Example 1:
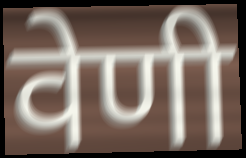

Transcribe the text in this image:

वेणी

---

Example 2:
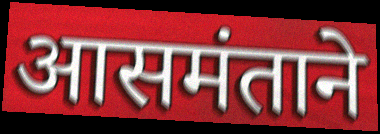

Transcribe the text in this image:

आसमंताने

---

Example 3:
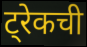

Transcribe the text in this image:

ट्रेकची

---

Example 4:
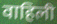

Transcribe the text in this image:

वाहिली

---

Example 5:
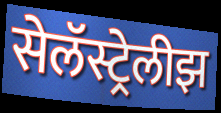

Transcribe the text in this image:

सेलॅस्ट्रेलीझ